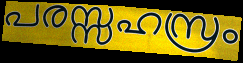
പരസ്സഹസ്രം